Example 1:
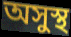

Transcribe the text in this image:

অসুস্থ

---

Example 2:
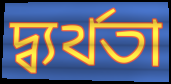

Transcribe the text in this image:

দ্ব্যর্থতা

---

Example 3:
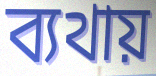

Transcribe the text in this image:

ব্যথায়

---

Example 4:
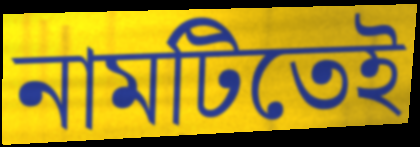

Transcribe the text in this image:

নামটিতেই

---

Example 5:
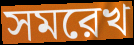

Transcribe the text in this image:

সমরেখ